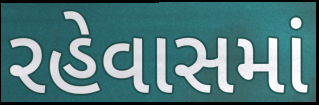
રહેવાસમાં